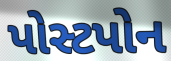
પોસ્ટપોન